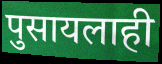
पुसायलाही